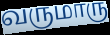
வருமாரு